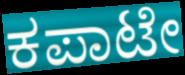
ಕಪಾಟೇ